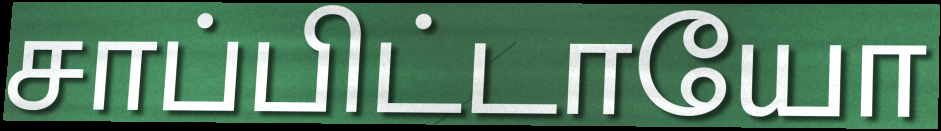
சாப்பிட்டாயோ